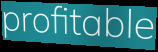
profitable